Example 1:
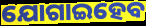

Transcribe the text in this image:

ଯୋଗାଇହେବ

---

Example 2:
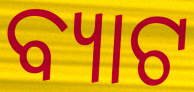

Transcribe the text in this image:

ବ୍ୟାଟ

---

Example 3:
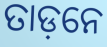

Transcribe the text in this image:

ତାଡ଼ନେ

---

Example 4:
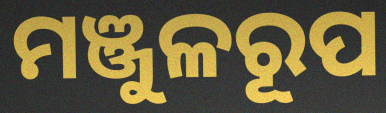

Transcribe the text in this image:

ମଞ୍ଜୁଳରୂପ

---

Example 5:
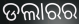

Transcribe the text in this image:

ଡଲାରର